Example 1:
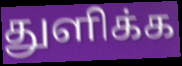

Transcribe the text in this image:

துளிக்க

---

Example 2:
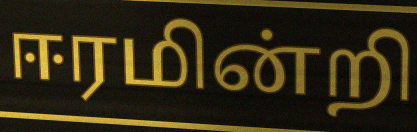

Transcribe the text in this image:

ஈரமின்றி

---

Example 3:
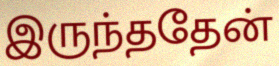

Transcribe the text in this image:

இருந்ததேன்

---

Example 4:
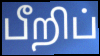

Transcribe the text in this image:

பீறிப்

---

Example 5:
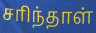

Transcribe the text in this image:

சரிந்தாள்